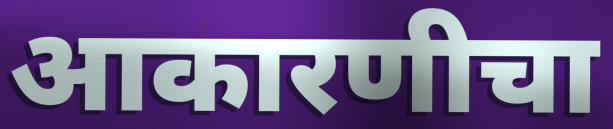
आकारणीचा